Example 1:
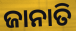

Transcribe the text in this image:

ଜାନାତି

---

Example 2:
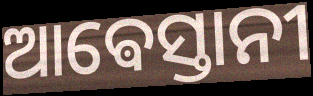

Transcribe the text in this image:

ଆଵେସ୍ତାନୀ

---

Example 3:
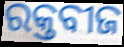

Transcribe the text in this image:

ରକ୍ତବୀଜ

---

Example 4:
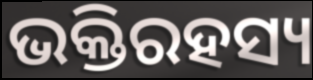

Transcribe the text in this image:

ଭକ୍ତିରହସ୍ୟ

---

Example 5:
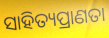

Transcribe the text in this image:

ସାହିତ୍ୟପ୍ରାଣତା